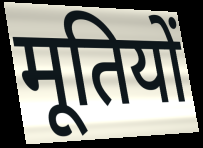
मूतियों